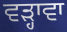
ਵੜ੍ਹਾਵਾ